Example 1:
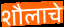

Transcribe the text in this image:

शौलाचे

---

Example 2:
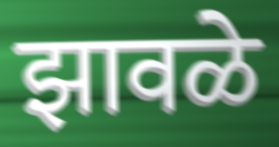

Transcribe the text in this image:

झावळे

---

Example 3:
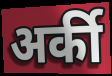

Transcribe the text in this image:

अर्की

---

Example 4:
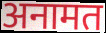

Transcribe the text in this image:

अनामत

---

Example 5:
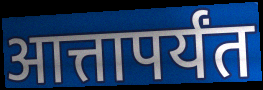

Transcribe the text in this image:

आत्तापर्यंत